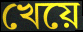
খেয়ে